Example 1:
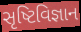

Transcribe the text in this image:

સૃષ્ટિવિજ્ઞાન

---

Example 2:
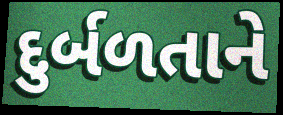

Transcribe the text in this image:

દુર્બળતાને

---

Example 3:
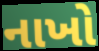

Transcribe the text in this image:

નાખો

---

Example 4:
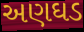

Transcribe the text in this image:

અણઘડ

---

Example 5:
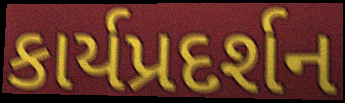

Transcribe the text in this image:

કાર્યપ્રદર્શન